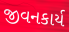
જીવનકાર્ય